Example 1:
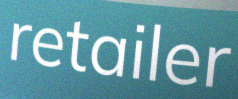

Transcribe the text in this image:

retailer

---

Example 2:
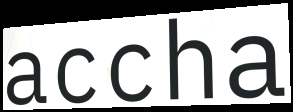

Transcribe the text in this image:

accha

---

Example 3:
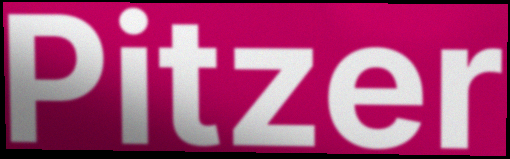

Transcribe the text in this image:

Pitzer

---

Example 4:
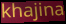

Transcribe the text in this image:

khajina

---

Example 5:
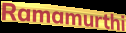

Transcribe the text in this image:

Ramamurthi